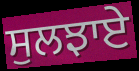
ਸੁਲਝਾਏ